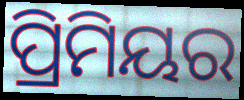
ପ୍ରିମିୟର